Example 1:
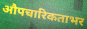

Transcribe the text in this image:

औपचारिकताभर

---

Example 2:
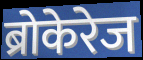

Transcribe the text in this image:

ब्रोकेरेज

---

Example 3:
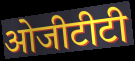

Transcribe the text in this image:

ओजीटीटी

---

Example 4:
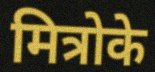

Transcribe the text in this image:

मित्रोके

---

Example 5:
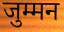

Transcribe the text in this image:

जुम्मन